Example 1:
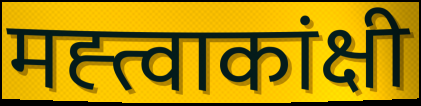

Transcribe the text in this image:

मह्त्वाकांक्षी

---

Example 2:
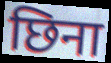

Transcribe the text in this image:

छिना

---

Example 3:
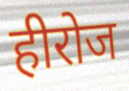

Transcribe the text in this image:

हीरोज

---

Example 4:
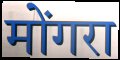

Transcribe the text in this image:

मोंगरा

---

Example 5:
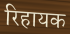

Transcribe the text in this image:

रिहायक